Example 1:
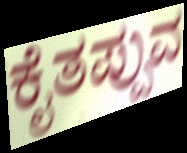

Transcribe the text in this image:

ಕೈತಪ್ಪುವ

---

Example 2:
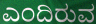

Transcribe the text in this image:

ಎಂದಿರುವ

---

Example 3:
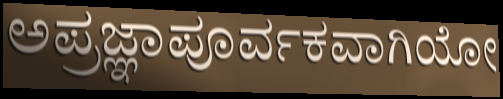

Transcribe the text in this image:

ಅಪ್ರಜ್ಞಾಪೂರ್ವಕವಾಗಿಯೋ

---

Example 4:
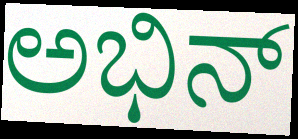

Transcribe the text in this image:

ಅಭಿನ್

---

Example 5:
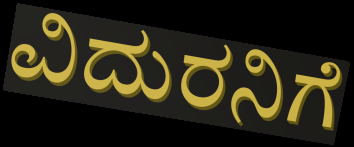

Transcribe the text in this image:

ವಿದುರನಿಗೆ